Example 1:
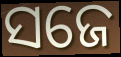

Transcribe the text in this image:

ସଜେ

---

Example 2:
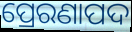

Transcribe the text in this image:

ପ୍ରେରଣାପଦ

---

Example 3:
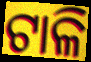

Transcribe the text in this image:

ଟାଳି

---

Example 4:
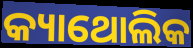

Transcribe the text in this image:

କ୍ୟାଥୋଲିକ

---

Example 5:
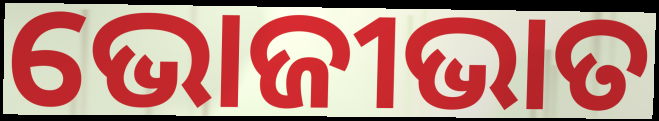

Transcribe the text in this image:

ଭୋଜୀଭାତ